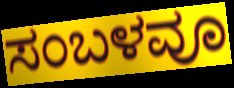
ಸಂಬಳವೂ